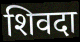
शिवदा